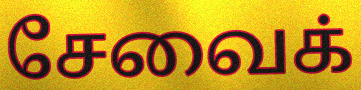
சேவைக்